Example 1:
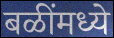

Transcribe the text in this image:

बळींमध्ये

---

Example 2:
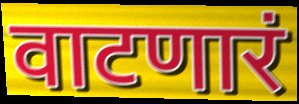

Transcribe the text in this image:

वाटणारं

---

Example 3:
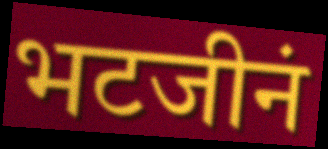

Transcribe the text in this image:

भटजीनं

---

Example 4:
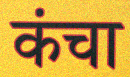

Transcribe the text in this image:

कंचा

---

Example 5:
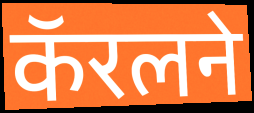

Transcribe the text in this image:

कॅरलने